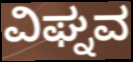
ವಿಘ್ನವ